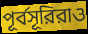
পূর্বসূরিরাও